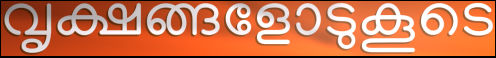
വൃക്ഷങ്ങളോടുകൂടെ